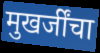
मुखर्जींचा